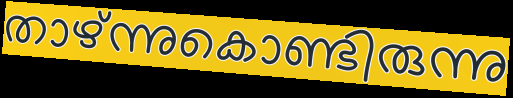
താഴ്ന്നുകൊണ്ടിരുന്നു